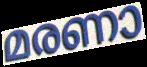
മരണാ